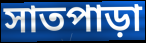
সাতপাড়া